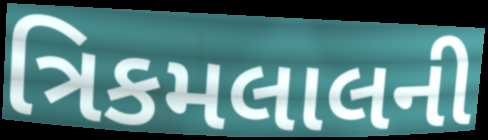
ત્રિકમલાલની